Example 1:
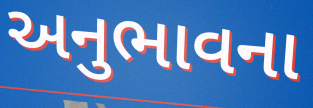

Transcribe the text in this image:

અનુભાવના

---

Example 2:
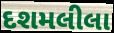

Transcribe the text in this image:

દશમલીલા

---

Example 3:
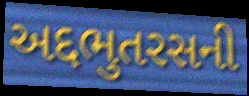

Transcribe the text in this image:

અદ્દભુતરસની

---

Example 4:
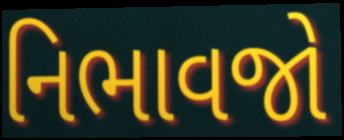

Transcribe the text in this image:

નિભાવજો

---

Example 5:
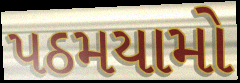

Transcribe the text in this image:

પઠમયામો